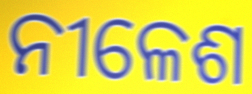
ନୀଳେଶ